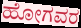
ಹೋಗವರ